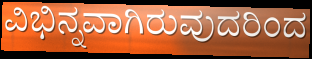
ವಿಭಿನ್ನವಾಗಿರುವುದರಿಂದ